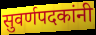
सुवर्णपदकांनी